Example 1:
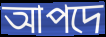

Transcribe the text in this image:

আপদে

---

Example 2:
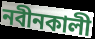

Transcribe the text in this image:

নবীনকালী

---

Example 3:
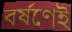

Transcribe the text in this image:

বর্ষণেই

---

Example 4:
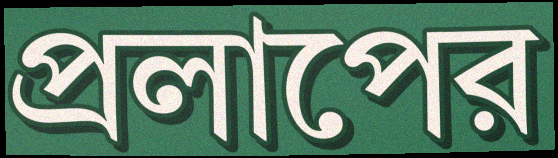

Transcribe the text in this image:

প্রলাপের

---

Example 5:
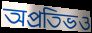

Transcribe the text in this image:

অপ্রতিভও